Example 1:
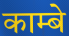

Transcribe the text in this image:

काम्बे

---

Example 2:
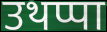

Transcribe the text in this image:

उथप्पा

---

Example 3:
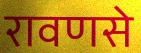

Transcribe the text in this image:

रावणसे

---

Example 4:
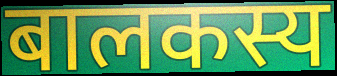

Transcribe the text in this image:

बालकस्य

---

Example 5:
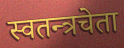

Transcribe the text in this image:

स्वतन्त्रचेता